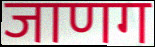
जाणग